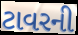
ટાવરની